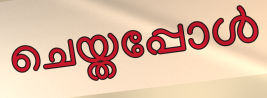
ചെയ്തപ്പോൾ